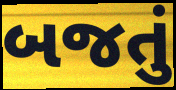
બજતું